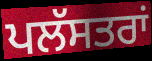
ਪਲੱਸਤਰਾਂ